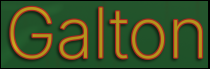
Galton